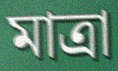
মাত্ৰা